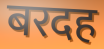
बरदह